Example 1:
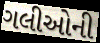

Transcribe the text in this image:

ગલીઓની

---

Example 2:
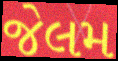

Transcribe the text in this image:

જેલમ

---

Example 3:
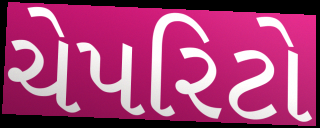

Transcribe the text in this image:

ચેપરિટો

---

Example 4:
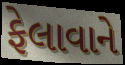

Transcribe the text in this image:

ફેલાવાને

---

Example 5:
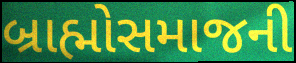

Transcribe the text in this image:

બ્રાહ્મોસમાજની